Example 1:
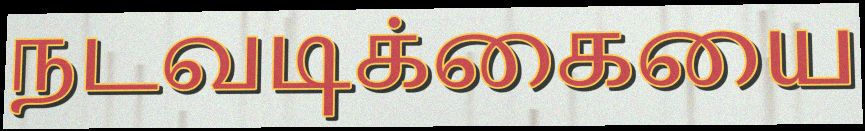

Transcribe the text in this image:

நடவடிக்கையை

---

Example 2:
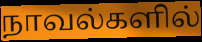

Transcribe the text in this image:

நாவல்களில்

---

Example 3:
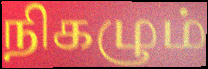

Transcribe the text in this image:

நிகழும்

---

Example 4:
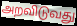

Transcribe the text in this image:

அறவிடுவது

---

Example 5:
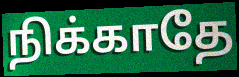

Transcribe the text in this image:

நிக்காதே